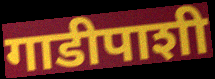
गाडीपाशी